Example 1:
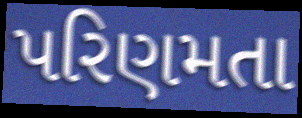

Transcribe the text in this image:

પરિણમતા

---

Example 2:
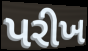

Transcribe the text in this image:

પરીખ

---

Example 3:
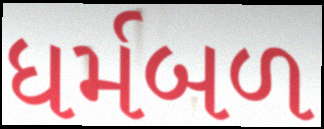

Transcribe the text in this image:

ધર્મબળ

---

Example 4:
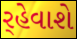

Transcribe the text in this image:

ર્‌હેવાશે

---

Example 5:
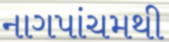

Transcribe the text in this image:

નાગપાંચમથી